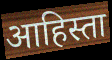
आहिस्ता